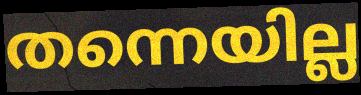
തന്നെയില്ല